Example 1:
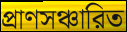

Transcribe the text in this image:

প্রাণসঞ্চারিত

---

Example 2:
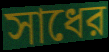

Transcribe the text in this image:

সাধের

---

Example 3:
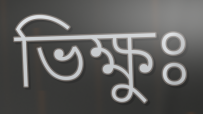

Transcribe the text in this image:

ভিক্ষুঃ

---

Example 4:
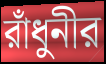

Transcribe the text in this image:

রাঁধুনীর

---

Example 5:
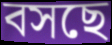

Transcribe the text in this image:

বসছে